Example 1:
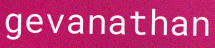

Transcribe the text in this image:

gevanathan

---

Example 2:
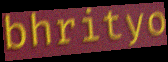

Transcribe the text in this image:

bhrityo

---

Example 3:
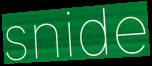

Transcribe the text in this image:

snide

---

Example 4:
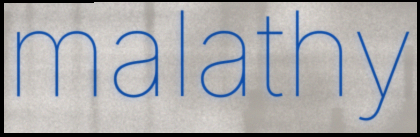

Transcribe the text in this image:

malathy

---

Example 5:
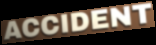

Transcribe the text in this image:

ACCIDENT